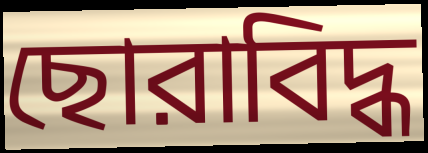
ছোরাবিদ্ধ